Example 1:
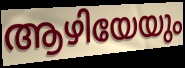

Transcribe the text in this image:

ആഴിയേയും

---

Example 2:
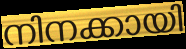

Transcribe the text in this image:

നിനക്കായി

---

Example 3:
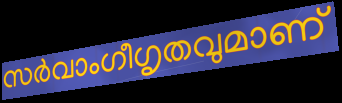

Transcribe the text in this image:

സർവാംഗീഗൃതവുമാണ്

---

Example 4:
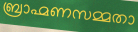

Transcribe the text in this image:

ബ്രാഹ്മണസമ്മതാ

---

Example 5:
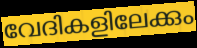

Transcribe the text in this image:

വേദികളിലേക്കും